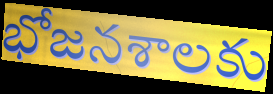
భోజనశాలకు